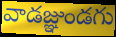
వాడజ్ఞుండగు